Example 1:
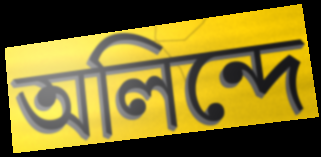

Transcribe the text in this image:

অলিন্দে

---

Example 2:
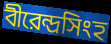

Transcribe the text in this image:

বীরেন্দ্রসিংহ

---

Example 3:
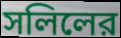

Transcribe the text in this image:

সলিলের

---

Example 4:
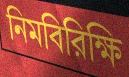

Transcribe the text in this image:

নিমবিরিক্ষি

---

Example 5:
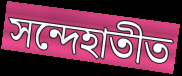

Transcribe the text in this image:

সন্দেহাতীত